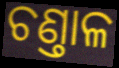
ଚଣ୍ତାଳ